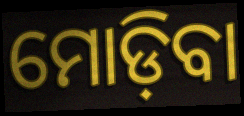
ମୋଡ଼ିବା